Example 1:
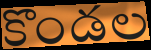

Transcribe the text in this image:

కొండల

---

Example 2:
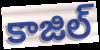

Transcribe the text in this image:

కాజిల్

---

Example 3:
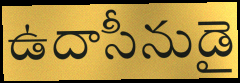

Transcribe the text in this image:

ఉదాసీనుడై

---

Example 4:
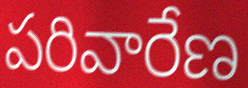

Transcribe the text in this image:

పరివారేణ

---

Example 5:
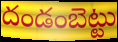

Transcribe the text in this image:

దండంబెట్టు